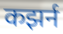
कझर्न